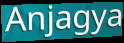
Anjagya